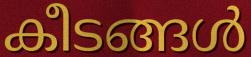
കീടങ്ങൾ